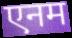
एनम